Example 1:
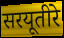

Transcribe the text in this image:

सरयूतीरे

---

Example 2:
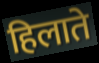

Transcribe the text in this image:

हिलाते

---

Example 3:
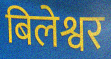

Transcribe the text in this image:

बिलेश्वर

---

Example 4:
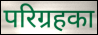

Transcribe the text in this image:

परिग्रहका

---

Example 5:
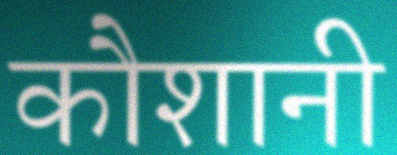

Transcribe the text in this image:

कौशानी